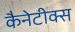
कैनेटीक्स